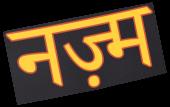
नज़्म